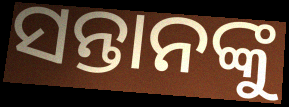
ସନ୍ତାନଙ୍କୁ